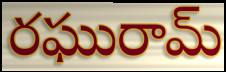
రఘురామ్